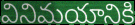
వినిమయానికి